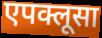
एपक्लूसा